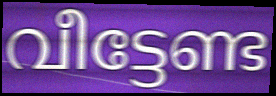
വീട്ടേണ്ട